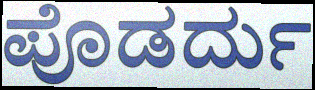
ಪೊಡರ್ದು